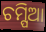
ଚମ୍ପିଆ